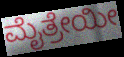
ಮೈತ್ರೇಯೀ